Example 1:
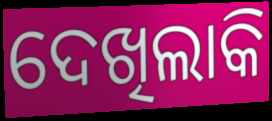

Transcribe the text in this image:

ଦେଖିଲାକି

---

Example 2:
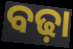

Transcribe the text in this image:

ବଢ଼ା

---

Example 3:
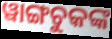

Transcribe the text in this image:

ୱାଙ୍ଗଚୁକଙ୍କ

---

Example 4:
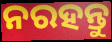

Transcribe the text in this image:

ନରହନ୍ତୁ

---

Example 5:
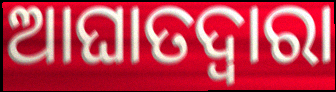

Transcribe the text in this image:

ଆଘାତଦ୍ୱାରା